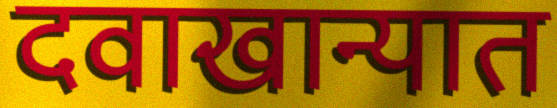
दवाखान्यात